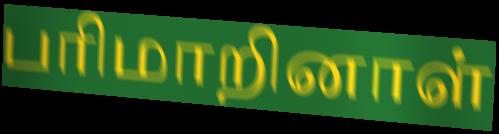
பரிமாறினாள்